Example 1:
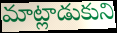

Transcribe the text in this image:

మాట్లాడుకుని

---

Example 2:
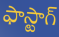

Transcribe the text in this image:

ఫాస్టాగ్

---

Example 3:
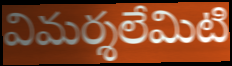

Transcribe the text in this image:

విమర్శలేమిటి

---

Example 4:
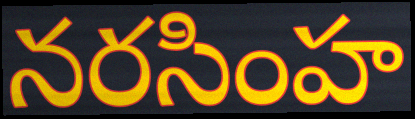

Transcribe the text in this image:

నరసింహ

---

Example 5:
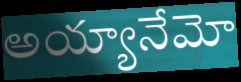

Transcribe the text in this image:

అయ్యానేమో